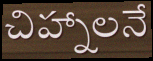
చిహ్నాలనే